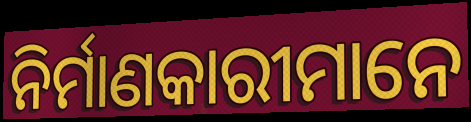
ନିର୍ମାଣକାରୀମାନେ